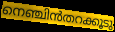
നെഞ്ചിൻതറക്കൂടു